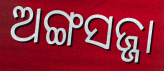
ଅଙ୍ଗସଜ୍ଜା